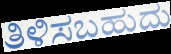
ತಿಳಿಸಬಹುದು